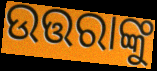
ଉତ୍ତରାଙ୍କୁ